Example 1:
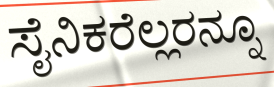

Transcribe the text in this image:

ಸೈನಿಕರೆಲ್ಲರನ್ನೂ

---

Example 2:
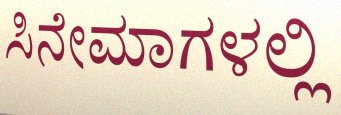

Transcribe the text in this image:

ಸಿನೇಮಾಗಳಲ್ಲಿ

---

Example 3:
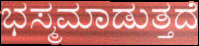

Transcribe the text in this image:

ಭಸ್ಮಮಾಡುತ್ತದೆ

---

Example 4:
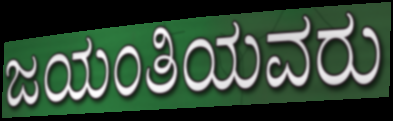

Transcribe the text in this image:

ಜಯಂತಿಯವರು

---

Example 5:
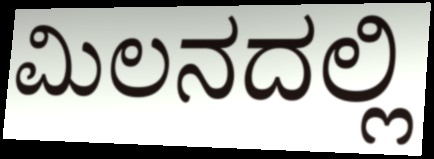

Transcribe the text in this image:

ಮಿಲನದಲ್ಲಿ